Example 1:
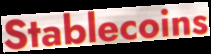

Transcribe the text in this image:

Stablecoins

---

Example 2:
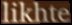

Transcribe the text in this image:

likhte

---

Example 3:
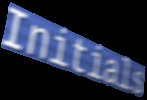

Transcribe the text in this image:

Initials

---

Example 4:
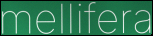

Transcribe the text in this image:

mellifera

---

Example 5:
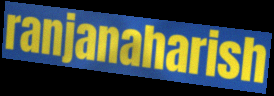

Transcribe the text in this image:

ranjanaharish